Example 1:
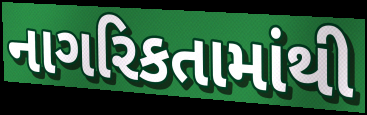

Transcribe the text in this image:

નાગરિકતામાંથી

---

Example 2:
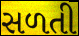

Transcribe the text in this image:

સળતી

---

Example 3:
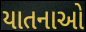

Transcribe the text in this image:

યાતનાઓ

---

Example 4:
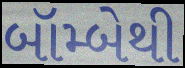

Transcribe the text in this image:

બૉમ્બેથી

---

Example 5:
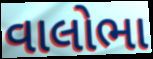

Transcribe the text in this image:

વાલોભા